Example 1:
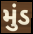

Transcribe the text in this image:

મુંડ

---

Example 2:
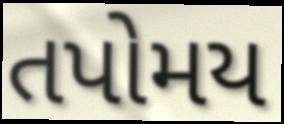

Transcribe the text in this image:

તપોમય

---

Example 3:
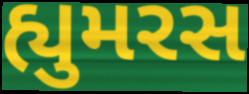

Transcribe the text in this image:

હ્યુમરસ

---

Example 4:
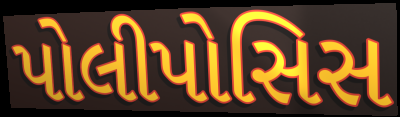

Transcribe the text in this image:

પોલીપોસિસ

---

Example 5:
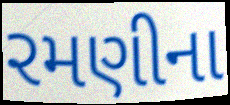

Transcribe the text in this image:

રમણીના